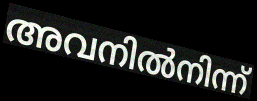
അവനിൽനിന്ന്